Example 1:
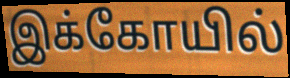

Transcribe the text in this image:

இக்கோயில்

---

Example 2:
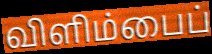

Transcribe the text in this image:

விளிம்பைப்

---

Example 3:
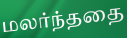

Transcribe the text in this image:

மலர்ந்ததை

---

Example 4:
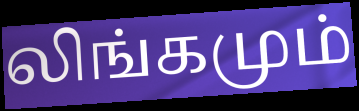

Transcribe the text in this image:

லிங்கமும்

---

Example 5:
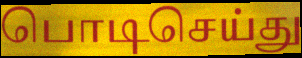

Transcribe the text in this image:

பொடிசெய்து